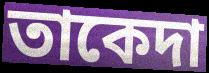
তাকেদা